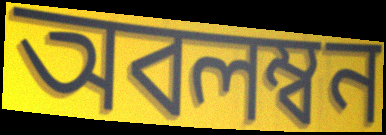
অবলম্বন